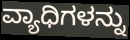
ವ್ಯಾಧಿಗಳನ್ನು